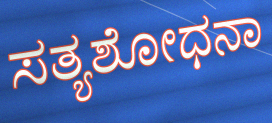
ಸತ್ಯಶೋಧನಾ